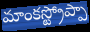
మాంకస్ట్రోప్పా